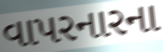
વાપરનારના